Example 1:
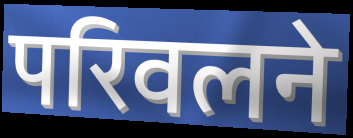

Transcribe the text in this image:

परिवलने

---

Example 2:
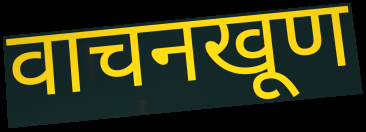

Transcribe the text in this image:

वाचनखूण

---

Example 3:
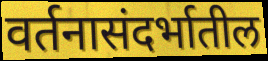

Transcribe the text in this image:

वर्तनासंदर्भातील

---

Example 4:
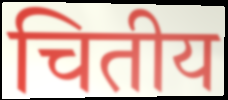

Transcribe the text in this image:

चितीय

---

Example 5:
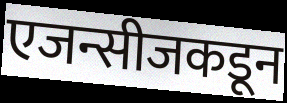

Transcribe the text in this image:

एजन्सीजकडून